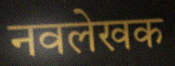
नवलेखक